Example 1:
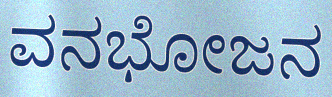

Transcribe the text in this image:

ವನಭೋಜನ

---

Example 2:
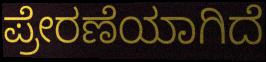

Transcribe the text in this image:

ಪ್ರೇರಣೆಯಾಗಿದೆ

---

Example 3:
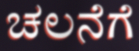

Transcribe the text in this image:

ಚಲನೆಗೆ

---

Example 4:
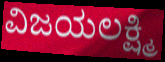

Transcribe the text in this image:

ವಿಜಯಲಕ್ಷ್ಮಿ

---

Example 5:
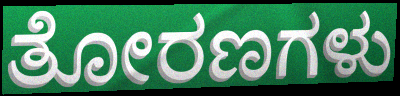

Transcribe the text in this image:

ತೋರಣಗಳು